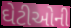
ઘેટીઓની